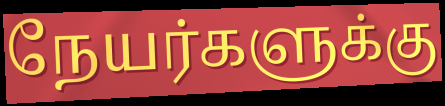
நேயர்களுக்கு